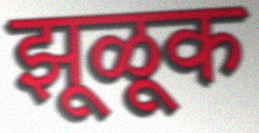
झूळूक